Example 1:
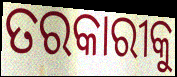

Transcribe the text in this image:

ତରକାରୀକୁ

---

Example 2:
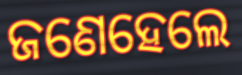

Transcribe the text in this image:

ଜଣେହେଲେ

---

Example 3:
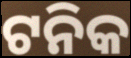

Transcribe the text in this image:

ଟନିକ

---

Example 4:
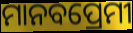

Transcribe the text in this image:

ମାନବପ୍ରେମୀ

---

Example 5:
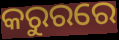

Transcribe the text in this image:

କରୁରରେ